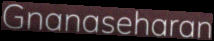
Gnanaseharan